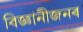
বিজ্ঞানীজনৰ